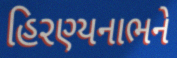
હિરણ્યનાભને